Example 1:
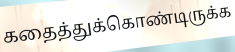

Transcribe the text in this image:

கதைத்துக்கொண்டிருக்க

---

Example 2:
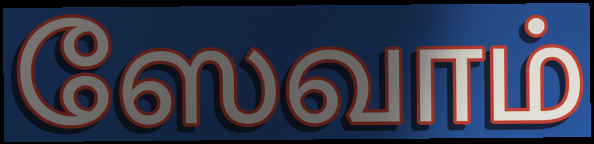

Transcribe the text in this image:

ஸேவாம்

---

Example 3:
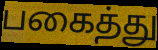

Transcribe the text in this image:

பகைத்து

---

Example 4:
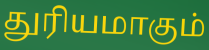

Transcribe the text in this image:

துரியமாகும்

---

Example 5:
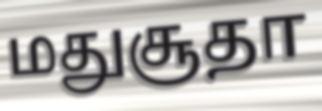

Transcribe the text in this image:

மதுசூதா